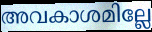
അവകാശമില്ലേ